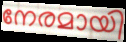
നേരമായി